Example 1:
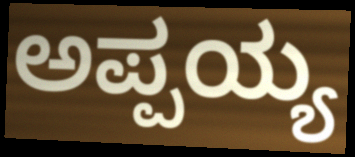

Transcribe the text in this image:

ಅಪ್ಪಯ್ಯ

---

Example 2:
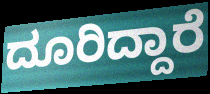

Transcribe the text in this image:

ದೂರಿದ್ದಾರೆ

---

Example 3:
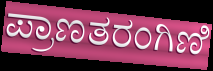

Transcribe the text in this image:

ಪ್ರಾಣತರಂಗಿಣಿ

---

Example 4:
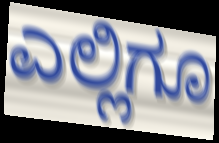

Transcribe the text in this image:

ಎಲ್ಲಿಗೂ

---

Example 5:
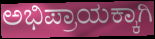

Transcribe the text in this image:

ಅಭಿಪ್ರಾಯಕ್ಕಾಗಿ